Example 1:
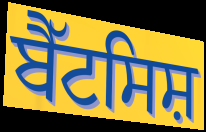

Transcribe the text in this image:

ਬੈੱਟਸਿਸ਼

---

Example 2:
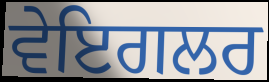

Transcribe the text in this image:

ਵੇਇਗਲਰ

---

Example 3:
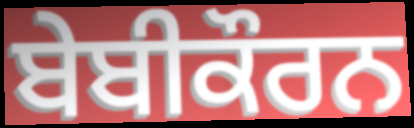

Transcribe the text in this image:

ਬੇਬੀਕੌਰਨ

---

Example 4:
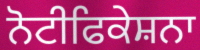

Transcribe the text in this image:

ਨੋਟੀਫਿਕੇਸ਼ਨਾ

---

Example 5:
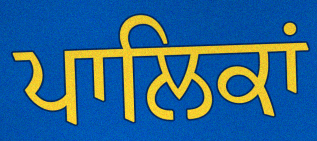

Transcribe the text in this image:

ਪਾਲਿਕਾਂ